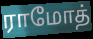
ராமோத்